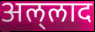
अल्लाद